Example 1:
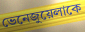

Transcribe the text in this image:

ভেনেজুয়েলাকে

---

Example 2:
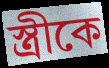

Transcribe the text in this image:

স্ত্রীকে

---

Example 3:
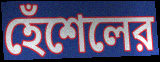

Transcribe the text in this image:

হেঁশেলের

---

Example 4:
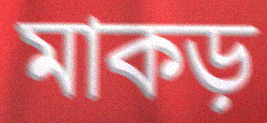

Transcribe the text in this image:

মাকড়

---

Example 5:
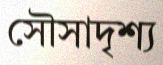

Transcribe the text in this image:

সৌসাদৃশ্য